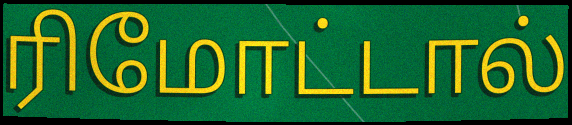
ரிமோட்டால்